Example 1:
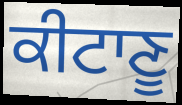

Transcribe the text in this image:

ਕੀਟਾਣੂ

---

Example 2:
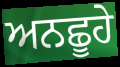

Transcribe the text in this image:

ਅਨਛੂਹੇ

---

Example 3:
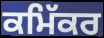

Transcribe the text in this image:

ਕਮਿੱਕਰ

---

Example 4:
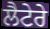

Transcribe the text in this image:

ਲੈਟੇਰੇ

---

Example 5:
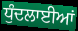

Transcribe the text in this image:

ਧੁੰਦਲਾਈਆਂ